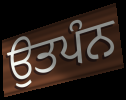
ਉਤਪੰਨ